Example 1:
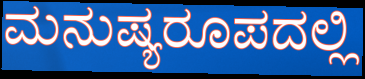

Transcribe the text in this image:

ಮನುಷ್ಯರೂಪದಲ್ಲಿ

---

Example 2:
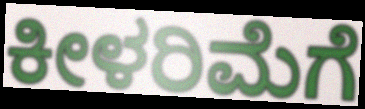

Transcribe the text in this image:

ಕೀಳರಿಮೆಗೆ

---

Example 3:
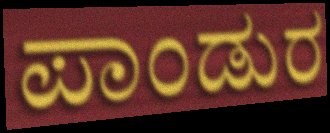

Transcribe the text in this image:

ಪಾಂಡುರ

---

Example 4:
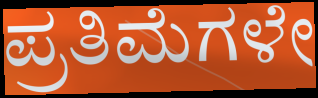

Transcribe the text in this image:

ಪ್ರತಿಮೆಗಳೇ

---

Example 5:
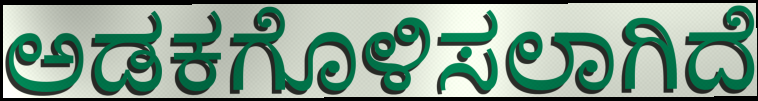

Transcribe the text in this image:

ಅಡಕಗೊಳಿಸಲಾಗಿದೆ